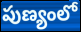
పుణ్యంలో